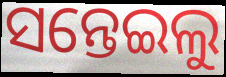
ସନ୍ତେଇଲୁ